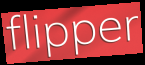
flipper